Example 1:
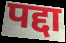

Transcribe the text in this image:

पद्दा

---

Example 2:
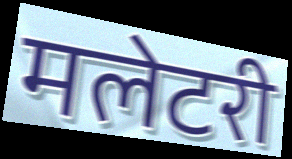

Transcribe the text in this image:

मलेटरी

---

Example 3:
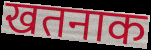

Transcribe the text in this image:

खतनाक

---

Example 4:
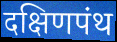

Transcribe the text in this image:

दक्षिणपंथ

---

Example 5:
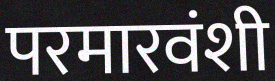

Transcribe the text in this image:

परमारवंशी